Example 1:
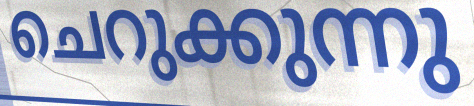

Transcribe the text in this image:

ചെറുക്കുന്നു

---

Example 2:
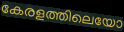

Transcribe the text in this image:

കേരളത്തിലെയോ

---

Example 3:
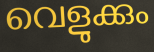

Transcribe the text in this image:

വെളുക്കും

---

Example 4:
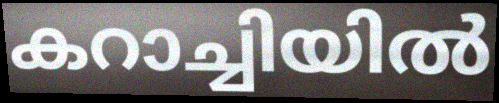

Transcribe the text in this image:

കറാച്ചിയിൽ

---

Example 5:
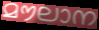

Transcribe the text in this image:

മൗലാന